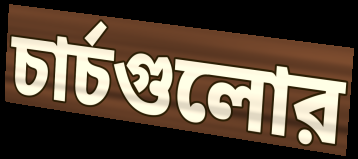
চার্চগুলোর